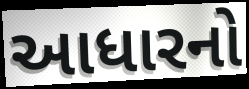
આધારનો